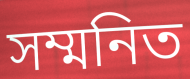
সম্মনিত